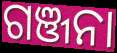
ଗଞ୍ଜନା